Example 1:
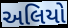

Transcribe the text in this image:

અલિયો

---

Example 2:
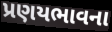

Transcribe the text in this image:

પ્રણયભાવના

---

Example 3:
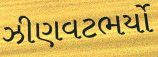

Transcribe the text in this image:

ઝીણવટભર્યો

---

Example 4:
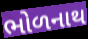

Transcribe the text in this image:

ભોળનાથ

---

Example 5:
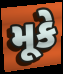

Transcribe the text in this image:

મૂકે